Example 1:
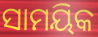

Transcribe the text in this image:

ସାମୟିକ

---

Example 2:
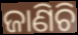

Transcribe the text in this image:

ଜାଣିଚି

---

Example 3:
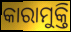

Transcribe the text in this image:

କାରାମୁକ୍ତି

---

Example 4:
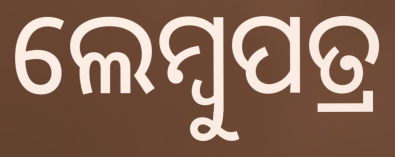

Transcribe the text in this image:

ଲେମ୍ବୁପତ୍ର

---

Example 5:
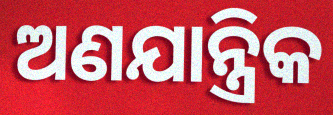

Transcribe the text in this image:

ଅଣଯାନ୍ତ୍ରିକ